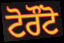
ਟੋਰੌੰਟੋ